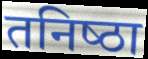
तनिष्‍ठा